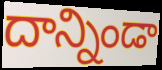
దాన్నిండా